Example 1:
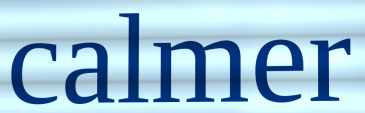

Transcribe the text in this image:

calmer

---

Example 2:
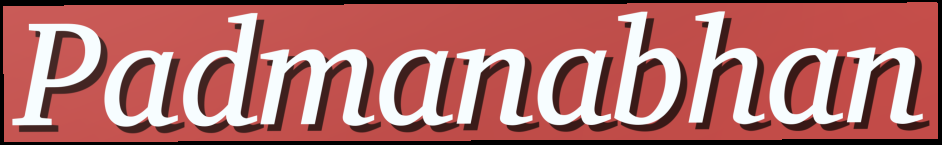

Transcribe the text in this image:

Padmanabhan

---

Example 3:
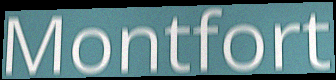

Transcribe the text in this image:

Montfort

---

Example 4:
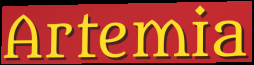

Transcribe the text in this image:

Artemia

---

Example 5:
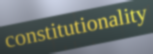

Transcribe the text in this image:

constitutionality